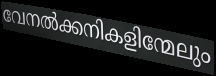
വേനൽക്കനികളിന്മേലും